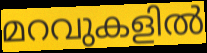
മറവുകളിൽ